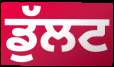
ਡੁੱਲਟ